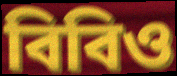
বিবিও